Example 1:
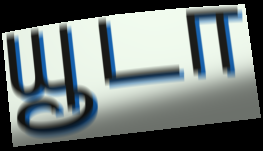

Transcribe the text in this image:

யூடா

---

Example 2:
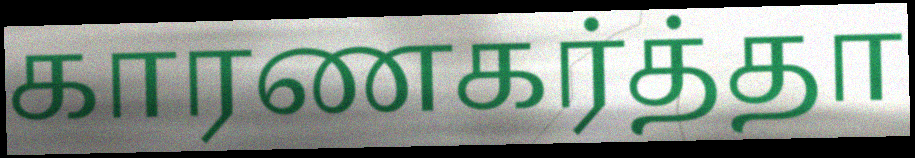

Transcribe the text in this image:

காரணகர்த்தா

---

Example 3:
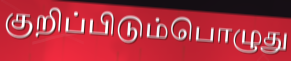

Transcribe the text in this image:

குறிப்பிடும்பொழுது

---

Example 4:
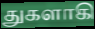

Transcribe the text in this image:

துகளாகி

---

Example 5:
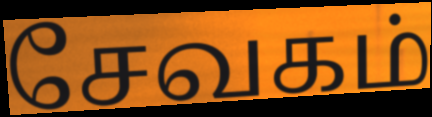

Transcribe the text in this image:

சேவகம்